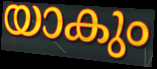
യാകും